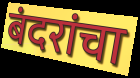
बंदरांचा